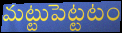
మట్టుపెట్టటం